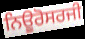
ਨਿਊਰੋਸਰਜੀ